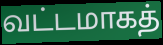
வட்டமாகத்